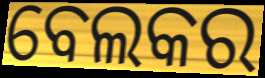
ବେଲକର